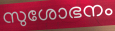
സുശോഭനം